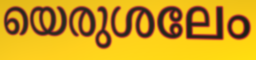
യെരുശലേം